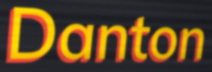
Danton